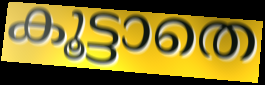
കൂട്ടാതെ